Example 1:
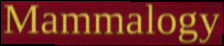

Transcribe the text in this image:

Mammalogy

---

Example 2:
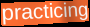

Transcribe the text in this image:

practicing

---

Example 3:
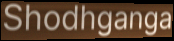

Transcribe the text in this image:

Shodhganga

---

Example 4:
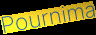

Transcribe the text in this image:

Pournima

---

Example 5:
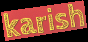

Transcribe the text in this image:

karish